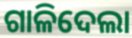
ଗାଳିଦେଲା